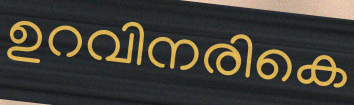
ഉറവിനരികെ